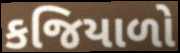
કજિયાળો